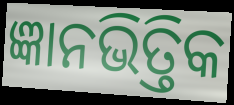
ଜ୍ଞାନଭିତ୍ତିକ